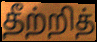
தீற்றித்